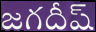
జగదీష్